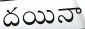
దయినా